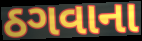
ઠગવાના